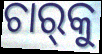
ଚାର୍‌କୁ